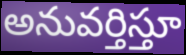
అనువర్తిస్తూ